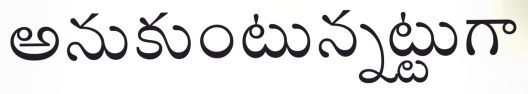
అనుకుంటున్నట్టుగా